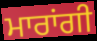
ਮਾਰਾਂਗੀ